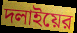
দলাইয়ের